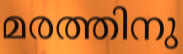
മരത്തിനു